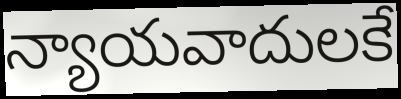
న్యాయవాదులకే